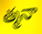
త్మనా